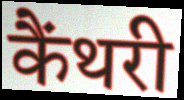
कैंथरी